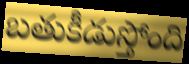
బతుకీడుస్తోంది